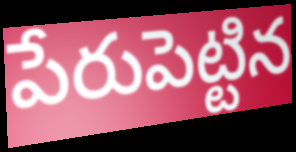
పేరుపెట్టిన